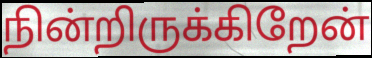
நின்றிருக்கிறேன்